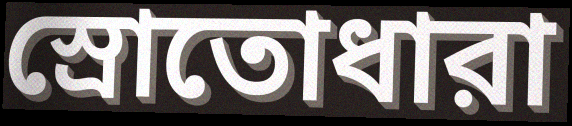
স্রোতোধারা